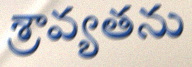
శ్రావ్యతను